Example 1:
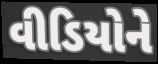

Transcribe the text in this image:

વીડિયોને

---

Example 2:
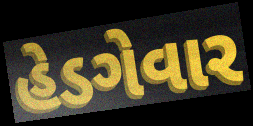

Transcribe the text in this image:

હેડગેવાર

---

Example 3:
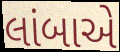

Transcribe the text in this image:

લાંબાએ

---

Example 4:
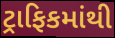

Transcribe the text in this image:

ટ્રાફિકમાંથી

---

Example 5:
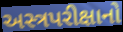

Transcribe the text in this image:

અસ્ત્રપરીક્ષાનો